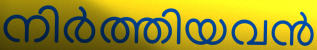
നിർത്തിയവൻ